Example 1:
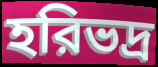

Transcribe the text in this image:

হরিভদ্র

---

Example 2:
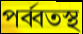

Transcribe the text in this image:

পর্ব্বতস্থ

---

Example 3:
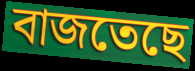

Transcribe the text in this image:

বাজতেছে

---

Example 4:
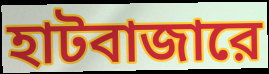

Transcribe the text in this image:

হাটবাজারে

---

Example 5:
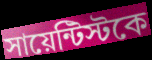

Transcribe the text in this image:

সায়েন্টিস্টকে